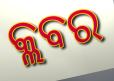
କ୍ଲବର